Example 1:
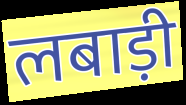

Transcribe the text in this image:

लबाड़ी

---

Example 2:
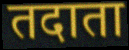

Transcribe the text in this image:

तदाता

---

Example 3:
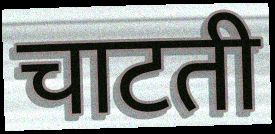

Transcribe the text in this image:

चाटती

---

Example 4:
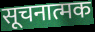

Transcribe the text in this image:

सूचनात्मक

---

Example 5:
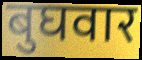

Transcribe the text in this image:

बुघवार